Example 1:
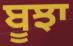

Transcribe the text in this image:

ਬੂਝਾ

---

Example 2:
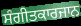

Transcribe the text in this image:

ਸੰਗੀਤਕਾਰਜਾਨ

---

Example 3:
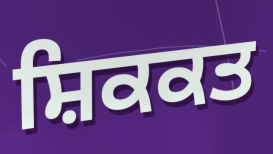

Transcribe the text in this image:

ਸ਼ਿਕਕਤ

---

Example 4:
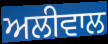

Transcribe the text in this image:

ਅਲੀਵਾਲ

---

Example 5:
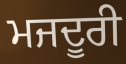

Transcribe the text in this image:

ਮਜਦੂਰੀ